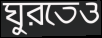
ঘুরতেও